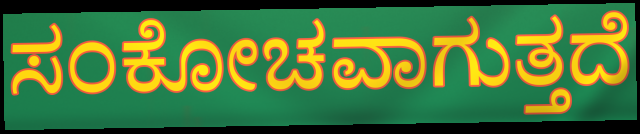
ಸಂಕೋಚವಾಗುತ್ತದೆ